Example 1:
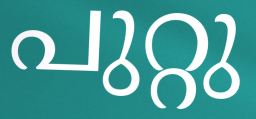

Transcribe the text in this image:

പുറ്റു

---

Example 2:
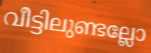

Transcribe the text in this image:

വീട്ടിലുണ്ടല്ലോ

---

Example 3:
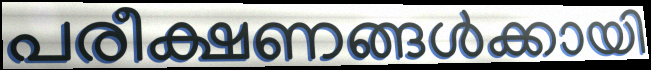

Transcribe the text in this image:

പരീക്ഷണങ്ങൾക്കായി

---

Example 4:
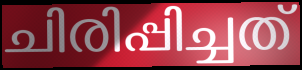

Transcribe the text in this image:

ചിരിപ്പിച്ചത്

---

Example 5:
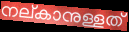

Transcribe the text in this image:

നല്കാനുള്ളത്